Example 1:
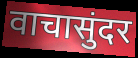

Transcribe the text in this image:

वाचासुंदर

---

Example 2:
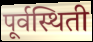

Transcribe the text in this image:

पूर्वस्थिती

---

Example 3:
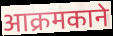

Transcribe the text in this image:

आक्रमकाने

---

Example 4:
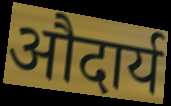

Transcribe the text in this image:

औदार्य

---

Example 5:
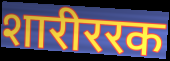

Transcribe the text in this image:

शारीररक